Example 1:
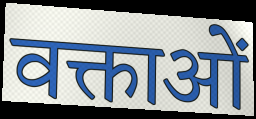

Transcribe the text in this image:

वक्ताओें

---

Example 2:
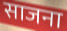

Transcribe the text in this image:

साजना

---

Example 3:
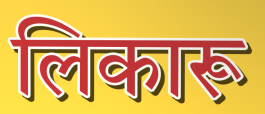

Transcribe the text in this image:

लिकारू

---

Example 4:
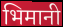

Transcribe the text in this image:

भिमानी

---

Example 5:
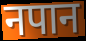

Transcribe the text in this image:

नपान